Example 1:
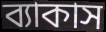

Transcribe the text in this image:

ব্যাকাস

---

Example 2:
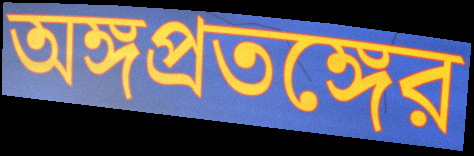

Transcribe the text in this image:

অঙ্গপ্রতঙ্গের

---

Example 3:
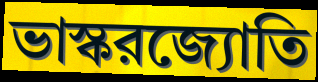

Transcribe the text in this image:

ভাস্করজ্যোতি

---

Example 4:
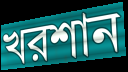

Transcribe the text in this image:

খরশান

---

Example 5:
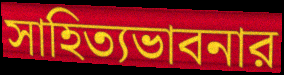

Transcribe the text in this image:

সাহিত্যভাবনার